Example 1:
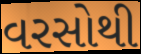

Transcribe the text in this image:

વરસોથી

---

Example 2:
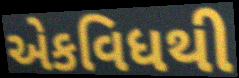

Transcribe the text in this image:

એકવિધથી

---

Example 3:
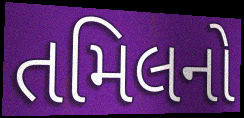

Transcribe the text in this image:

તમિલનો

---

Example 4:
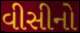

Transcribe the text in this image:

વીસીનો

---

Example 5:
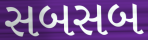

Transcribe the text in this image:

સબસબ